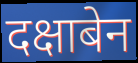
दक्षाबेन